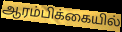
ஆரம்பிக்கையில்